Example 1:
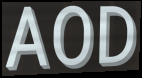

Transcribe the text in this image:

AOD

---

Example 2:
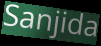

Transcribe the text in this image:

Sanjida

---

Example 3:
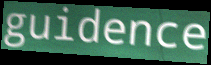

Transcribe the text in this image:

guidence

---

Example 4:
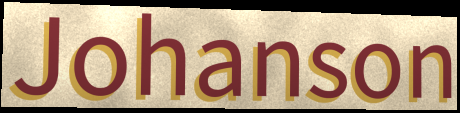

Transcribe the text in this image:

Johanson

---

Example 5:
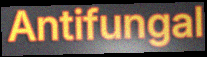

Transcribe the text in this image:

Antifungal